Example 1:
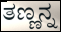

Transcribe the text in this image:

ತಣ್ಣನ್ನ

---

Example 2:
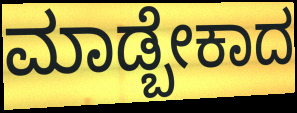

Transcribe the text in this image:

ಮಾಡ್ಬೇಕಾದ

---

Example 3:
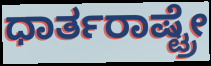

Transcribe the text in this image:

ಧಾರ್ತರಾಷ್ಟ್ರೇ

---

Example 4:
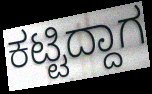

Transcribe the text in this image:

ಕಟ್ಟಿದ್ದಾಗ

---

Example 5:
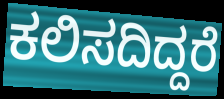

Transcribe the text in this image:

ಕಲಿಸದಿದ್ದರೆ